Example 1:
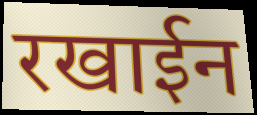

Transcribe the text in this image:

रखाईन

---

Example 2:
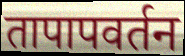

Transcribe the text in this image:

तापापवर्तन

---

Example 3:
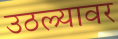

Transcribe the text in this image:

उठल्यावर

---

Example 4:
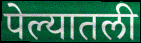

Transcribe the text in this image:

पेल्यातली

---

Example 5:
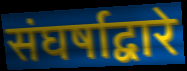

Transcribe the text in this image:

संघर्षाद्वारे